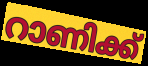
റാണിക്ക്